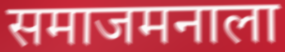
समाजमनाला